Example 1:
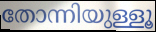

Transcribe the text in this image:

തോന്നിയുള്ളൂ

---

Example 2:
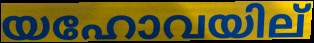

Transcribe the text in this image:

യഹോവയില്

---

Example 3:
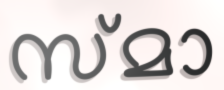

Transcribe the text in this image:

സ്മാ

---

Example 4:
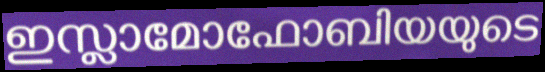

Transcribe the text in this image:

ഇസ്ലാമോഫോബിയയുടെ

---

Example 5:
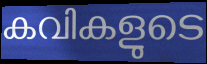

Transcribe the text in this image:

കവികളുടെ